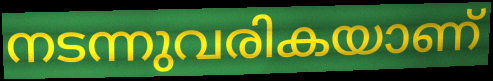
നടന്നുവരികയാണ്